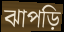
ঝাপড়ি